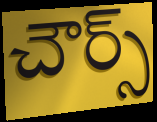
చౌర్స్